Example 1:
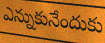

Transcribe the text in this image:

ఎన్నుకునేందుకు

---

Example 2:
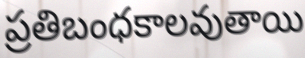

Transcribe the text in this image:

ప్రతిబంధకాలవుతాయి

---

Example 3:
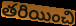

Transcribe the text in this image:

తరియించి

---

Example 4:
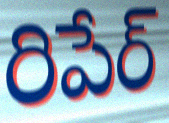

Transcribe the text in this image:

రిపేర్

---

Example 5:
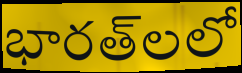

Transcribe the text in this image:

భారత్‌లలో